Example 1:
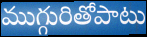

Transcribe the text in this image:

ముగ్గురితోపాటు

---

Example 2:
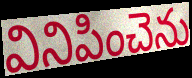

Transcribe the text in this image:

వినిపించెను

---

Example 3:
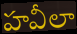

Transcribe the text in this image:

హవీలా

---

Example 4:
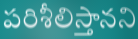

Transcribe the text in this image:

పరిశీలిస్తానని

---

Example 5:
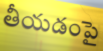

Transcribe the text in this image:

తీయడంపై